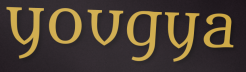
yougya